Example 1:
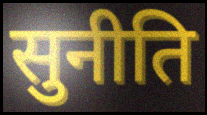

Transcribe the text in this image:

सुनीति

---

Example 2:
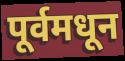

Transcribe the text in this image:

पूर्वमधून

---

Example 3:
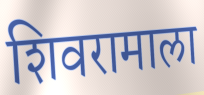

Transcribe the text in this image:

शिवरामाला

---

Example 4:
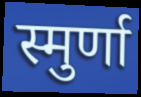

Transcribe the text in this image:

स्मुर्णा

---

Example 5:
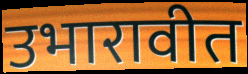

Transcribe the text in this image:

उभारावीत